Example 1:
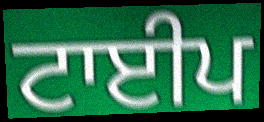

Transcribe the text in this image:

ਟਾਈਪ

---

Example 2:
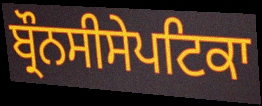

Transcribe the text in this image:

ਬ੍ਰੌਨਸੀਸੇਪਟਿਕਾ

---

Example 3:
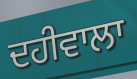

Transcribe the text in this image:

ਦਹੀਵਾਲਾ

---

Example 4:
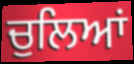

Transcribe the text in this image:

ਚੁਲਿਆਂ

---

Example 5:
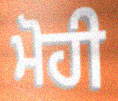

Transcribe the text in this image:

ਮੋਹੀ